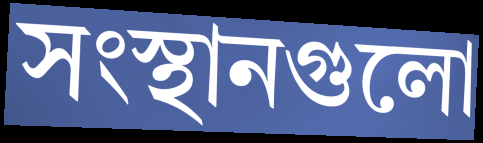
সংস্থানগুলো